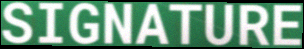
SIGNATURE